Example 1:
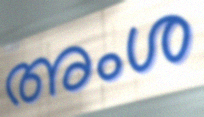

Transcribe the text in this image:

അംശ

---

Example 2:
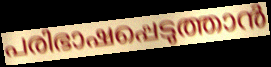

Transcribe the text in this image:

പരിഭാഷപ്പെടുത്താൻ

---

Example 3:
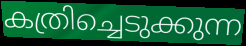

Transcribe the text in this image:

കത്രിച്ചെടുക്കുന്ന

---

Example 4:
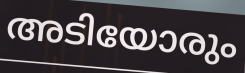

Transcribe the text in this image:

അടിയോരും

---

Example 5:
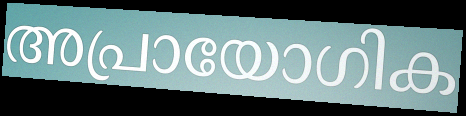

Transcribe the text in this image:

അപ്രായോഗിക